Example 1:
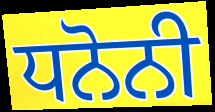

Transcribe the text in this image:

ਧਨੋਨੀ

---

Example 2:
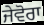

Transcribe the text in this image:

ਜੇਵੋਰਾ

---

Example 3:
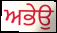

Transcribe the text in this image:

ਅਭੇਉ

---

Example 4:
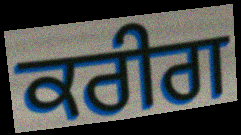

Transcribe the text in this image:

ਕਰੀਗ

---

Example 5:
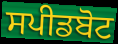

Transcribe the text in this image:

ਸਪੀਡਬੋਟ